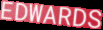
EDWARDS